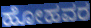
ಹೋಹವರ